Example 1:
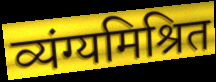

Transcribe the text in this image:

व्यंग्यमिश्रित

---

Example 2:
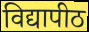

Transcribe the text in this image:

विद्यापीठ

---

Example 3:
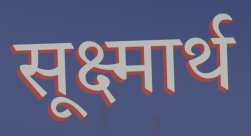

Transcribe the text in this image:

सूक्ष्मार्थ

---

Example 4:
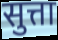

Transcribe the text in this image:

सुत्ता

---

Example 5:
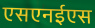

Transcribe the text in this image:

एसएनईएस